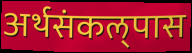
अर्थसंकल्पास